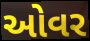
ઓવર